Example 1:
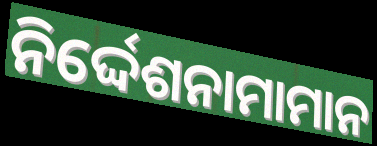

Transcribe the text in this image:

ନିର୍ଦ୍ଦେଶନାମାମାନ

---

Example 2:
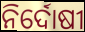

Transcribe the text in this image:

ନିର୍ଦୋଷୀ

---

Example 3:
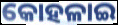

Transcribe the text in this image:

କୋହଳାଇ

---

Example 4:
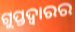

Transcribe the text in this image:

ଗୁପ୍ତଦ୍ୱାରର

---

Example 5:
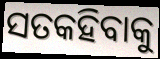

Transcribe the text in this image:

ସତକହିବାକୁ